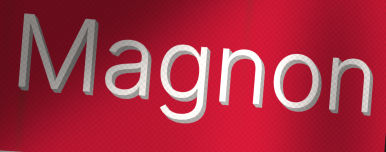
Magnon